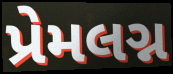
પ્રેમલગ્ન